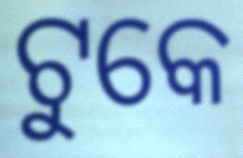
ଟୁକେ